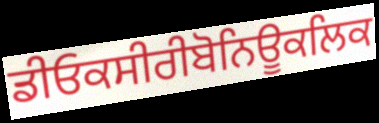
ਡੀਓਕਸੀਰੀਬੋਨਿਊਕਲਿਕ